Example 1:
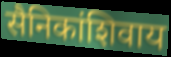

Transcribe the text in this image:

सैनिकांशिवाय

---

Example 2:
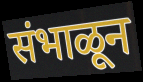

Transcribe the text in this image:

संभाळून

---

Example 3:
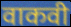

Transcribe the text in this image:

वाकवी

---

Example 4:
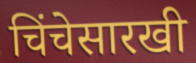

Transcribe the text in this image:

चिंचेसारखी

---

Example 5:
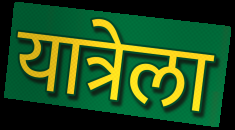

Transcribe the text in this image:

यात्रेला